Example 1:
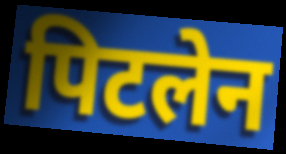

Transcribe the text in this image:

पिटलेन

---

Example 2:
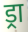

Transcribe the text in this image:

ड्रा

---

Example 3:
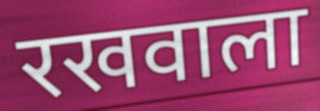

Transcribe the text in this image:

रखवाला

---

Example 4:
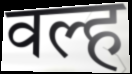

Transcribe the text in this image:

वल्ह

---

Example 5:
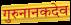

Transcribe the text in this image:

गुरुनानकदेव